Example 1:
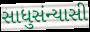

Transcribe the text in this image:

સાધુસંન્યાસી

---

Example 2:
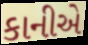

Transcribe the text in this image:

કાનીએ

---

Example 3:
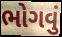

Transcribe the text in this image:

ભોગવું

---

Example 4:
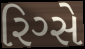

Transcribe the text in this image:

રિગ્સે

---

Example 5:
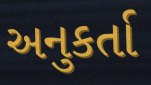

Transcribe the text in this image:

અનુકર્તા